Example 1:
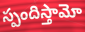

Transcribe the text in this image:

స్పందిస్తామో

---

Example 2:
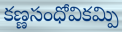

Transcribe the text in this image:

కణ్ణసంధోవికమ్పి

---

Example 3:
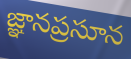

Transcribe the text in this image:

జ్ఞానప్రసూన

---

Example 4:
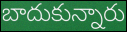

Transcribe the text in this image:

బాదుకున్నారు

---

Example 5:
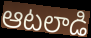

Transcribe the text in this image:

ఆటలాడి